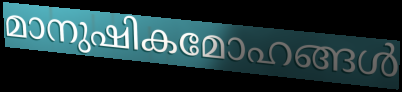
മാനുഷികമോഹങ്ങൾ